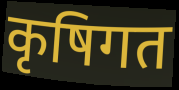
कृषिगत